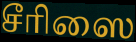
சீரிஸை